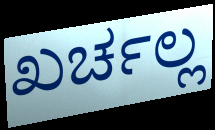
ಖರ್ಚಲ್ಲ